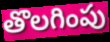
తొలగింపు